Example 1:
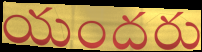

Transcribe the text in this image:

యందరు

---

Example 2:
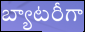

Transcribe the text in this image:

బ్యాటరీగా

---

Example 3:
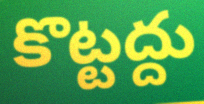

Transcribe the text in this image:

కొట్టద్దు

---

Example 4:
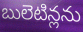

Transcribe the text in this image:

బులెటిన్లను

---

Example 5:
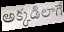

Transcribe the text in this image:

అక్కడిలాగే